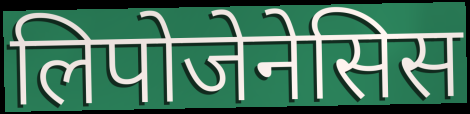
लिपोजेनेसिस